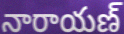
నారాయణ్